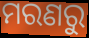
ମରଣରୁ